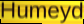
Humeyd